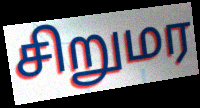
சிறுமர